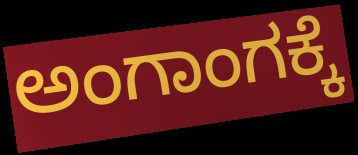
ಅಂಗಾಂಗಕ್ಕೆ